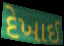
દેખાઈ